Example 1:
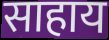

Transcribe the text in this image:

साहाय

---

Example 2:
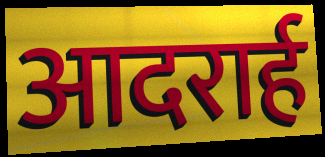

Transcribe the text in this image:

आदरार्ह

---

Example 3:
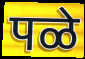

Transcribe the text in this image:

पळे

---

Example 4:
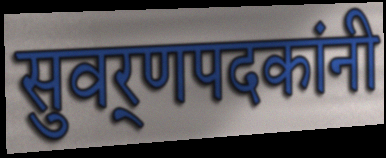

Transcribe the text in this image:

सुवर्णपदकांनी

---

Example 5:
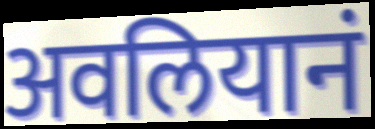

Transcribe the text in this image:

अवलियानं